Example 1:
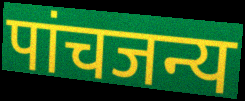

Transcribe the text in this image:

पांचजन्य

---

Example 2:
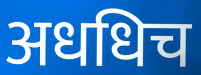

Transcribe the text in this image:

अधधिच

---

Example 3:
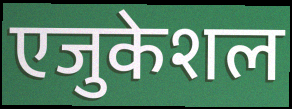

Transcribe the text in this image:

एजुकेशल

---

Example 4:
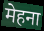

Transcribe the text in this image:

मेहना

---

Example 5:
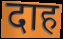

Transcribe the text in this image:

दाह